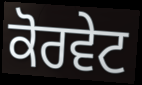
ਕੋਰਵੇਟ